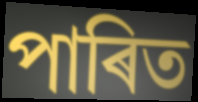
পাৰিত